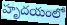
హృదయంలో